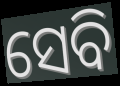
ସେବି